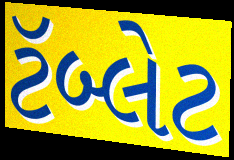
ટૅબ્લેટ